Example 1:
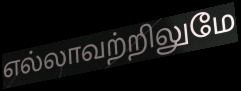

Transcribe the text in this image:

எல்லாவற்றிலுமே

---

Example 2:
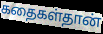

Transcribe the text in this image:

கதைகள்தான்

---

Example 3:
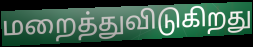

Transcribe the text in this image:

மறைத்துவிடுகிறது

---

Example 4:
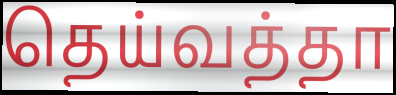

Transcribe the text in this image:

தெய்வத்தா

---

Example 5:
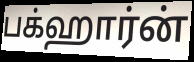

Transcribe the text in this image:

பக்ஹார்ன்